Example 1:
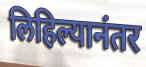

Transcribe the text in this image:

लिहिल्यानंतर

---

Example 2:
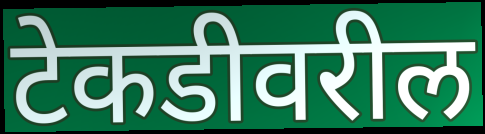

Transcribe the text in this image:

टेकडीवरील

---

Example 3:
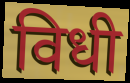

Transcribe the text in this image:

विधी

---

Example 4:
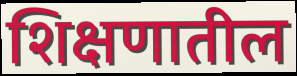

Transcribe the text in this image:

शिक्षणातील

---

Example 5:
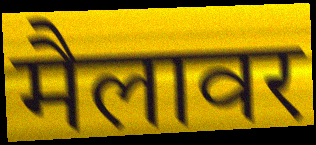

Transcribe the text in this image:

मैलावर